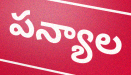
పన్యాల